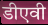
डीएवी